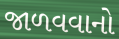
જાળવવાનો